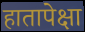
हातापेक्षा